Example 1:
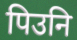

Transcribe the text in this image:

पिउनि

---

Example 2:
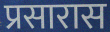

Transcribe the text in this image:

प्रसारास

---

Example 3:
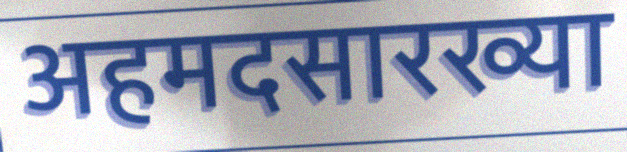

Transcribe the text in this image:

अहमदसारख्या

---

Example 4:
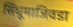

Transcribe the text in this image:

सिंधूमाजिवडा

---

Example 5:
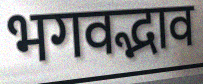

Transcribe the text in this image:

भगवद्भाव